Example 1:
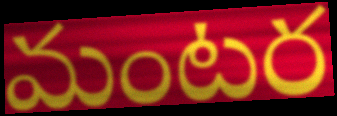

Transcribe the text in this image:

మంటర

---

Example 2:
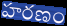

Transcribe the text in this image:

హరణం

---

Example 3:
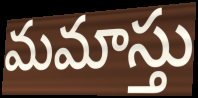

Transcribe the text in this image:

మమాస్తు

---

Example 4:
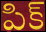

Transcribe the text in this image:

పిక్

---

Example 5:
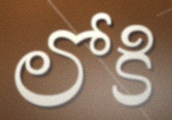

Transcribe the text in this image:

లోకి